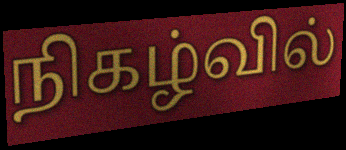
நிகழ்வில்